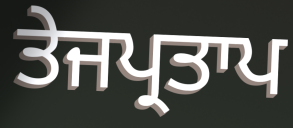
ਤੇਜਪ੍ਰਤਾਪ